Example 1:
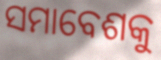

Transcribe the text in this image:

ସମାବେଶକୁ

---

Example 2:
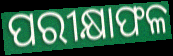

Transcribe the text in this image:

ପରୀକ୍ଷାଫଳ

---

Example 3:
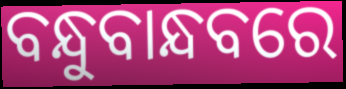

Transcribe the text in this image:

ବନ୍ଧୁବାନ୍ଧବରେ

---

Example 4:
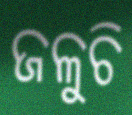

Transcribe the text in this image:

ଜଳୁଚି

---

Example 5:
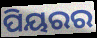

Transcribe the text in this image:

ପିୟରର